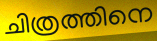
ചിത്രത്തിനെ